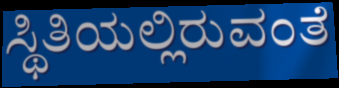
ಸ್ಥಿತಿಯಲ್ಲಿರುವಂತೆ